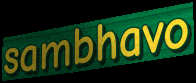
sambhavo